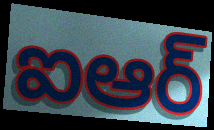
ఐఆర్